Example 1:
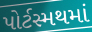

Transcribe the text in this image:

પોર્ટસ્મથમાં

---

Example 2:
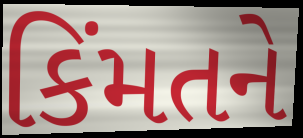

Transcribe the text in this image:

કિંમતને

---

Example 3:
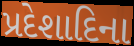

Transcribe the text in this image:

પ્રદેશાદિના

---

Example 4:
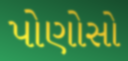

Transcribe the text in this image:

પોણોસો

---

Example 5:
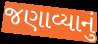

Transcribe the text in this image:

જણાવ્યાનું